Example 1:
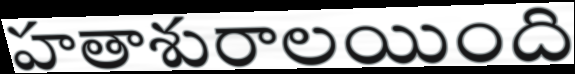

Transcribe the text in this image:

హతాశురాలయింది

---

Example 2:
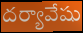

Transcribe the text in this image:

దర్యావేషు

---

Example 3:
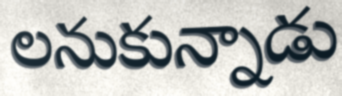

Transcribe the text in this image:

లనుకున్నాడు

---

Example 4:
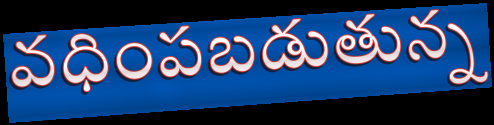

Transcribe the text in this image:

వధింపబడుతున్న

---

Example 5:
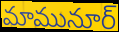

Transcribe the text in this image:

మామునూర్